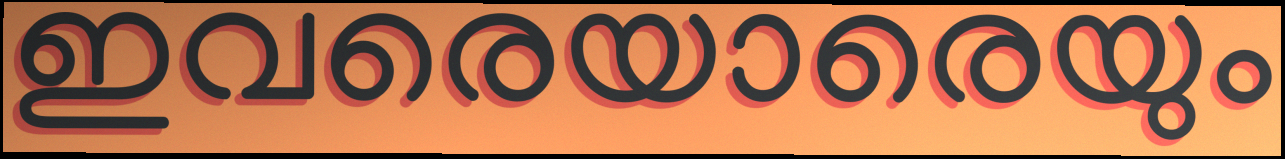
ഇവരെയാരെയും